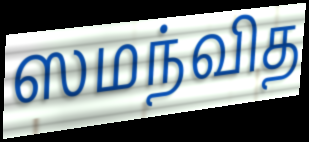
ஸமந்வித